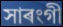
সাৰংগী